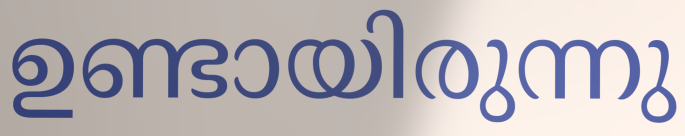
ഉണ്ടായിരുന്നു